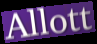
Allott